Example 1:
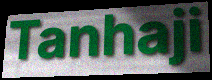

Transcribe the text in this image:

Tanhaji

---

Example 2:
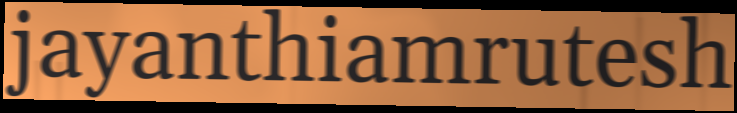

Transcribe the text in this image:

jayanthiamrutesh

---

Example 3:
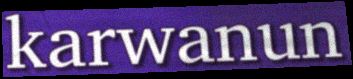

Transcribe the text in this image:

karwanun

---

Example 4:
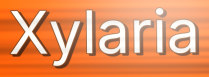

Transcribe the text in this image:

Xylaria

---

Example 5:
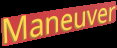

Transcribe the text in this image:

Maneuver